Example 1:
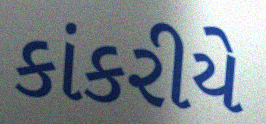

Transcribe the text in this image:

કાંકરીયે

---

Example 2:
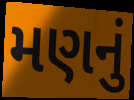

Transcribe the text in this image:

મણનું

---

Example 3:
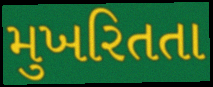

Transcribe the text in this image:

મુખરિતતા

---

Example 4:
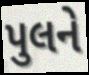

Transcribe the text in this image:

પુલને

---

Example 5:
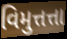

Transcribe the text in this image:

વિમુત્તત્તા